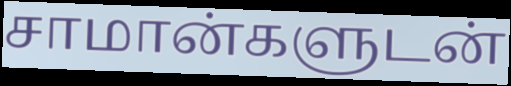
சாமான்களுடன்